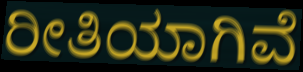
ರೀತಿಯಾಗಿವೆ